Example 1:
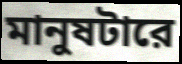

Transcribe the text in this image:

মানুষটারে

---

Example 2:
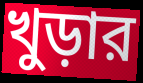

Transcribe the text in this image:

খুড়ার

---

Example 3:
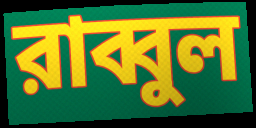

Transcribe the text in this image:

রাব্বুল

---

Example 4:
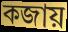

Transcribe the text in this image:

কজায়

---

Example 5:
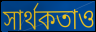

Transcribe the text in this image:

সার্থকতাও